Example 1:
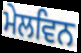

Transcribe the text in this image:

ਮੇਲਵਿਨ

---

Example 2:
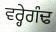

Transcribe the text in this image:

ਵਰ੍ਹੇਗੰਢ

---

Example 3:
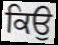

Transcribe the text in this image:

ਕਿਉ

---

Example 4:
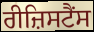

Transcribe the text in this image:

ਰੀਜ਼ਿਸਟੈਂਸ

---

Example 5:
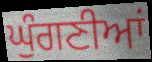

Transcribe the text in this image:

ਘੁੰਗਣੀਆਂ